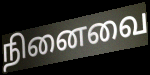
நினைவை